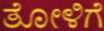
ತೋಳಿಗೆ